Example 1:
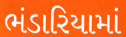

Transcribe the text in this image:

ભંડારિયામાં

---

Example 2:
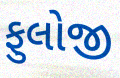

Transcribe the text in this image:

ફુલોજી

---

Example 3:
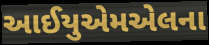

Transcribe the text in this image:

આઈયુએમએલના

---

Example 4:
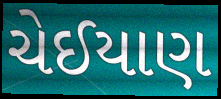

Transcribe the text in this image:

ચેઈયાણ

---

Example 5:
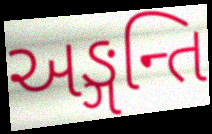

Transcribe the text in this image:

અઙ્ગન્તિ